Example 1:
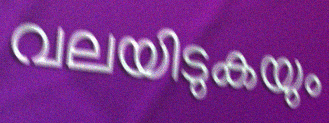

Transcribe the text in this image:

വലയിടുകയും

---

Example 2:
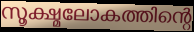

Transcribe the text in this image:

സൂക്ഷ്മലോകത്തിന്റെ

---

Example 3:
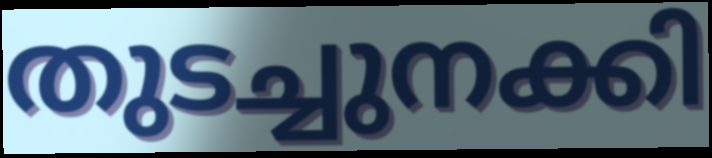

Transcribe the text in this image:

തുടച്ചുനക്കി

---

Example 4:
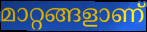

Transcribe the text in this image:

മാറ്റങ്ങളാണ്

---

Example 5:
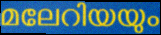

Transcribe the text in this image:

മലേറിയയും